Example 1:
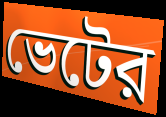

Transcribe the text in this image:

ভেটের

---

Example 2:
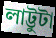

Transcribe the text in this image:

লাট্টুটা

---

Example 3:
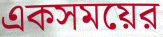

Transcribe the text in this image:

একসময়ের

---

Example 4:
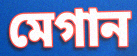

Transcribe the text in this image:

মেগান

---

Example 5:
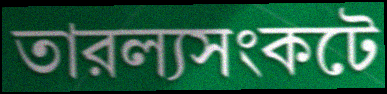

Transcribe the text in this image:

তারল্যসংকটে